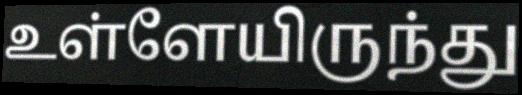
உள்ளேயிருந்து